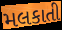
મલકાતી